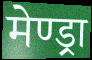
मेण्ड्रा